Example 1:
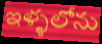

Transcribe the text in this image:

ఇళ్ళలోను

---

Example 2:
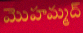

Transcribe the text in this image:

మొహమ్మద్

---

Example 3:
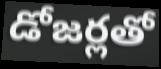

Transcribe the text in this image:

డోజర్లతో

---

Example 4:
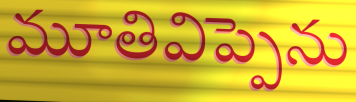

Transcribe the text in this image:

మూతివిప్పెను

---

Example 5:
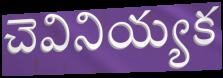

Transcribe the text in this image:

చెవినియ్యక